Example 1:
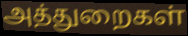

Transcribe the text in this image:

அத்துறைகள்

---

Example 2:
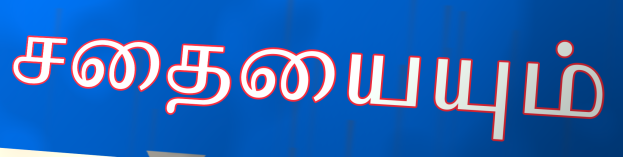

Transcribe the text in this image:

சதையையும்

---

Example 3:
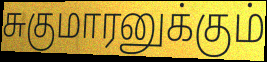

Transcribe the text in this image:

சுகுமாரனுக்கும்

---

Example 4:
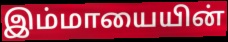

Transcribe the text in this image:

இம்மாயையின்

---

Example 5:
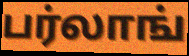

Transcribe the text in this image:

பர்லாங்